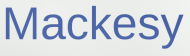
Mackesy